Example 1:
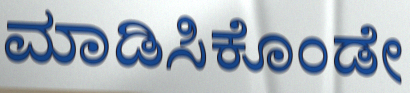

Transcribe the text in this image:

ಮಾಡಿಸಿಕೊಂಡೇ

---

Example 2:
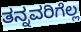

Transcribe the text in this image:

ತನ್ನವರಿಗೆಲ್ಲ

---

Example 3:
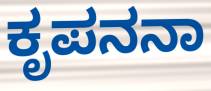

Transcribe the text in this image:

ಕೃಪನನಾ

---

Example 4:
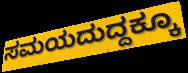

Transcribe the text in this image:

ಸಮಯದುದ್ದಕ್ಕೂ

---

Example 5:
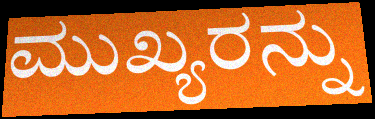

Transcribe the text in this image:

ಮುಖ್ಯರನ್ನು